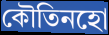
কৌতিনহো